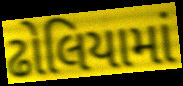
ઢોલિયામાં